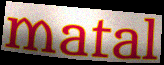
matal